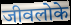
जीवलोके